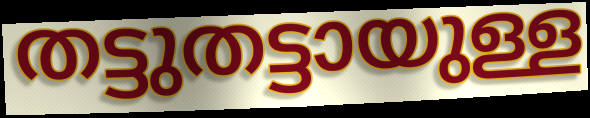
തട്ടുതട്ടായുള്ള